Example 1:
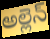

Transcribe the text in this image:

అల్లెన్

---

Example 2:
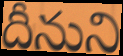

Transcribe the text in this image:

దీనుని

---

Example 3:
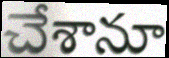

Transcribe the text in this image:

చేశానూ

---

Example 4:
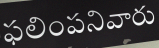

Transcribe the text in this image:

ఫలింపనివారు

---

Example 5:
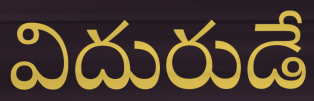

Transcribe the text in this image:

విదురుడే